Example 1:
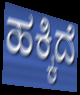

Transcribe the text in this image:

ಹಕ್ಕಿದೆ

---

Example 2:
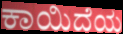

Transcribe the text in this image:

ಕಾಯಿದೆಯ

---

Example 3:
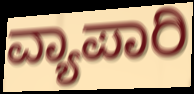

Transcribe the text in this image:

ವ್ಯಾಪಾರಿ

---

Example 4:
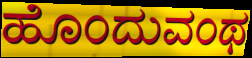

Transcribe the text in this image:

ಹೊಂದುವಂಥ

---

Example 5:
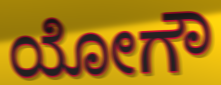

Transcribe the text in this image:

ಯೋಗೌ